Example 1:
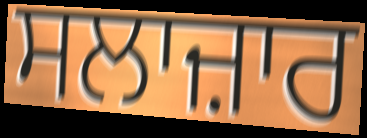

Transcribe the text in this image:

ਸਲਾਜ਼ਾਰ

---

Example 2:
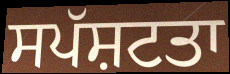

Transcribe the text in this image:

ਸਪੱਸ਼ਟਤਾ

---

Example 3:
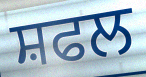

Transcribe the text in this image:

ਸ਼ਫਲ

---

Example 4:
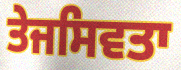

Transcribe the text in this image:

ਤੇਜਸਿਵਤਾ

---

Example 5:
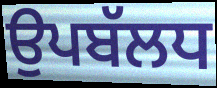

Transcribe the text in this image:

ਉਪਬੱਲਧ